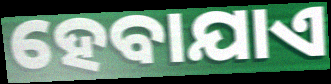
ହେବାଯାଏ